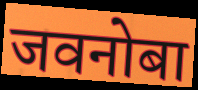
जवनोबा